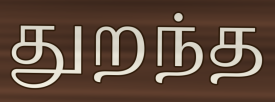
துறந்த